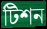
টিশন